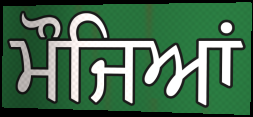
ਮੌਜਿਆਂ